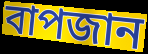
বাপজান